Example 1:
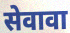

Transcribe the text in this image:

सेवावा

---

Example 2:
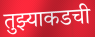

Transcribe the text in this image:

तुझ्याकडची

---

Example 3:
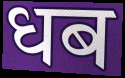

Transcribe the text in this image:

धब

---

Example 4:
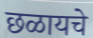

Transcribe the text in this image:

छळायचे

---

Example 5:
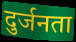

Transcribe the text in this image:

दुर्जनता